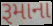
રૂમાના